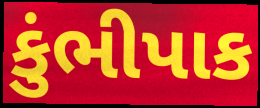
કુંભીપાક